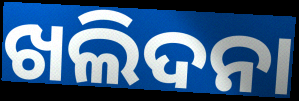
ଖଲିଦନା